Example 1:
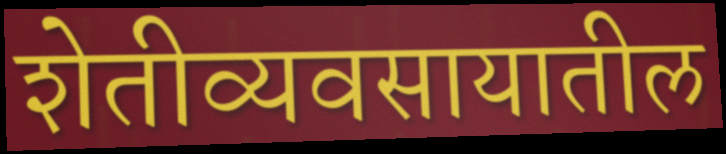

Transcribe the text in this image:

शेतीव्यवसायातील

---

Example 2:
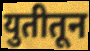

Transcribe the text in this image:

युतीतून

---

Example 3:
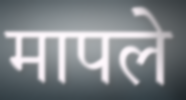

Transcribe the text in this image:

मापले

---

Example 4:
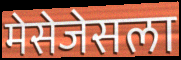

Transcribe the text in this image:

मेसेजेसला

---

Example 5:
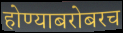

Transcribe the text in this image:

होण्याबरोबरच